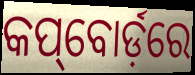
କପ୍‌ବୋର୍ଡ଼ରେ